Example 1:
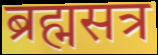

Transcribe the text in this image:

ब्रह्मसत्र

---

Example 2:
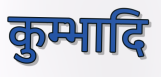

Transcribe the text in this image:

कुम्भादि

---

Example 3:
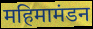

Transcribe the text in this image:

महिमामंडन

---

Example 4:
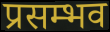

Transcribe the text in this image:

प्रसम्भव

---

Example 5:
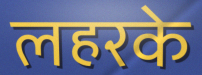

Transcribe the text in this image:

लहरके